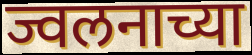
ज्वलनाच्या